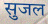
सुजल